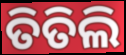
ତିତିଲି